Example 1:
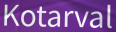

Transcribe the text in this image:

Kotarval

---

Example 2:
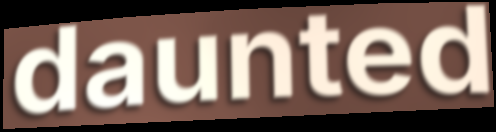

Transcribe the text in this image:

daunted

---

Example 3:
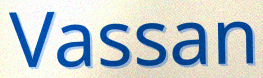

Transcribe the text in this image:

Vassan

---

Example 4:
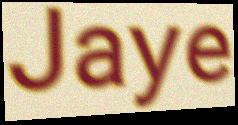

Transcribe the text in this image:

Jaye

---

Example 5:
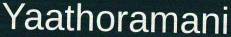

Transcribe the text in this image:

Yaathoramani